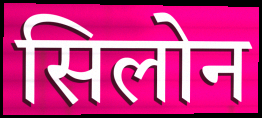
सिलोन